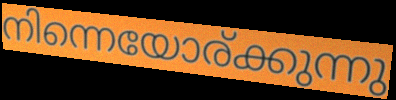
നിന്നെയോര്ക്കുന്നു